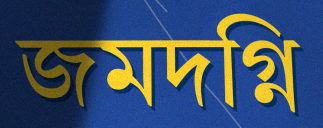
জমদগ্নি